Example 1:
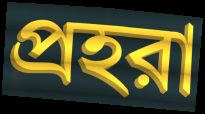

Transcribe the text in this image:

প্রহরা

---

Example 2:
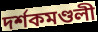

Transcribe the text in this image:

দর্শকমণ্ডলী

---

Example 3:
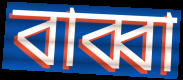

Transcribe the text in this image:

বাব্বা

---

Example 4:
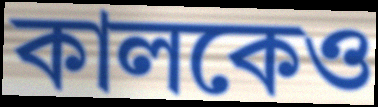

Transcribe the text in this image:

কালকেও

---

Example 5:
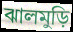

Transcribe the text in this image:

ঝালমুড়ি